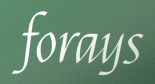
forays